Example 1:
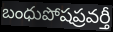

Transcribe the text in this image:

బంధుపోషప్రవర్తీ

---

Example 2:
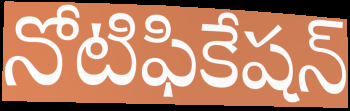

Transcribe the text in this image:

నోటిఫికేషన్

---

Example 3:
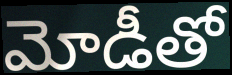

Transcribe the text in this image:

మోడీతో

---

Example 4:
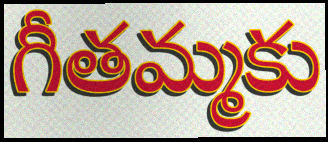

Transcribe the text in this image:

గీతమ్మకు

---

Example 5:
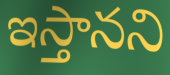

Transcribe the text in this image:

ఇస్తానని